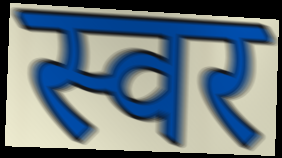
स्वर